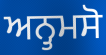
ਅਨ੍ਤਮਸੋ